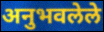
अनुभवलेले